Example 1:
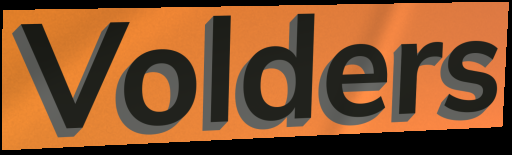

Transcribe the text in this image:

Volders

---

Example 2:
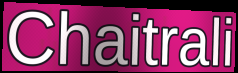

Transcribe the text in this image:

Chaitrali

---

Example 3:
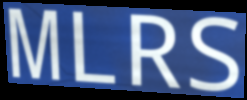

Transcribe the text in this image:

MLRS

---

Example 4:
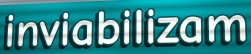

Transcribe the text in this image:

inviabilizam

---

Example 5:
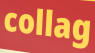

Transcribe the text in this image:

collag